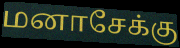
மனாசேக்கு